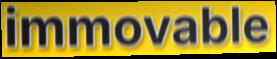
immovable